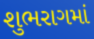
શુભરાગમાં